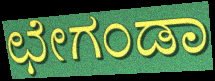
ಛೇಗಂಡಾ